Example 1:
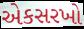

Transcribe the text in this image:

એકસરખો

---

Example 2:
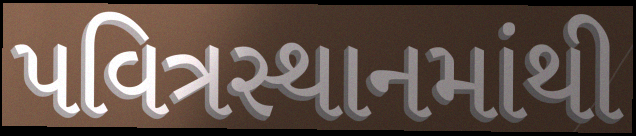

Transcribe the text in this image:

પવિત્રસ્થાનમાંથી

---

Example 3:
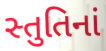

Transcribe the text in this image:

સ્તુતિનાં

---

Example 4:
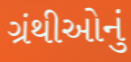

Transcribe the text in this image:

ગ્રંથીઓનું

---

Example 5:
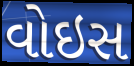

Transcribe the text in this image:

વોઇસ